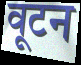
वूटन